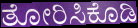
ತೋರಿಸಿಕೊಡಿ